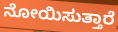
ನೋಯಿಸುತ್ತಾರೆ